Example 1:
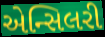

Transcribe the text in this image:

એન્સિલરી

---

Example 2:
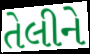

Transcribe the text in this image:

તેલીને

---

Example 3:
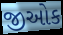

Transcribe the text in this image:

જીઓક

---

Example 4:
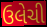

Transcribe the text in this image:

ઉલેચી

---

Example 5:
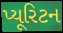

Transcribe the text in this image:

પ્યૂરિટન